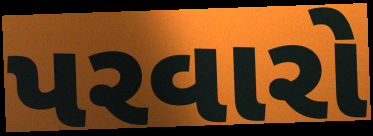
પરવારો